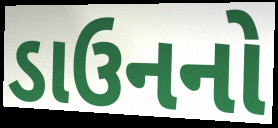
ડાઉનનો